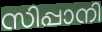
സിപ്പാനി